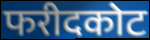
फरीदकोट